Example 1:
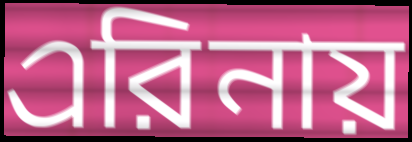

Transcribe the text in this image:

এরিনায়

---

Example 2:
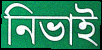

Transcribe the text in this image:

নিভাই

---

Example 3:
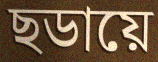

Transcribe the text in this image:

ছডায়ে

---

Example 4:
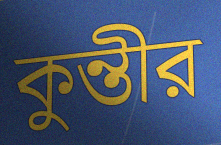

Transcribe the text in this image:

কুন্তীর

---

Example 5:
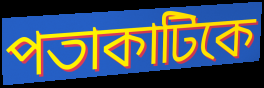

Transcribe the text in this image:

পতাকাটিকে